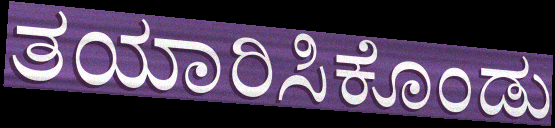
ತಯಾರಿಸಿಕೊಂಡು